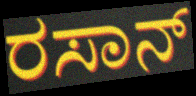
ರಸಾನ್